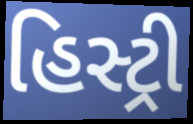
હિસ્ટ્રી